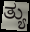
ತ್ಯು